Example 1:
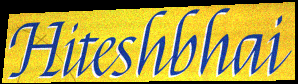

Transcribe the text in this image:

Hiteshbhai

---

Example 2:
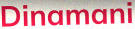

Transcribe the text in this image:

Dinamani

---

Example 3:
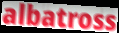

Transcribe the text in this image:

albatross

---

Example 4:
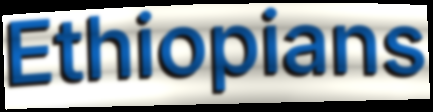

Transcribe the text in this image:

Ethiopians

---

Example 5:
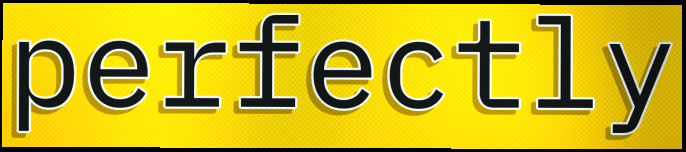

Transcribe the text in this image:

perfectly